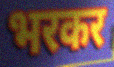
भरकर